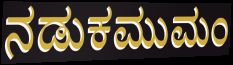
ನಡುಕಮುಮಂ